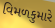
વિમળકુમારે